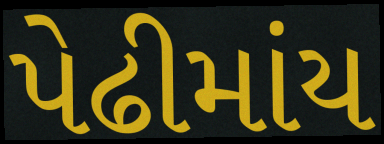
પેઢીમાંય